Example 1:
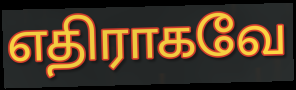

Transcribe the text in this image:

எதிராகவே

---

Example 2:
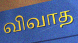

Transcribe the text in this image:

விவாத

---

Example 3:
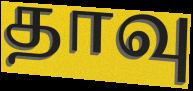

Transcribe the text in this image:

தாவு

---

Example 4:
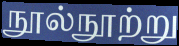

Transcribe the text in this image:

நூல்நூற்று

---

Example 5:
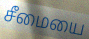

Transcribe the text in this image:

சீமையை